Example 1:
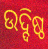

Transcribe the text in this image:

ଉଦ୍ଦିଷ୍ଠ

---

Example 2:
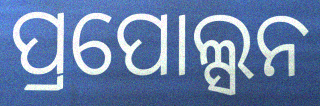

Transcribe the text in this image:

ପ୍ରପୋଲ୍ସନ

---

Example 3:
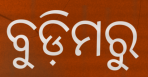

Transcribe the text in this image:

ବୁଡ଼ିମରୁ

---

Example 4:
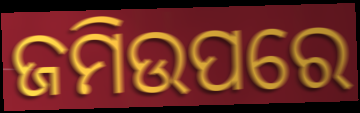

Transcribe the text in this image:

ଜମିଉପରେ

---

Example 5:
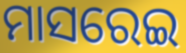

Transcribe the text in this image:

ମାସରେଇ